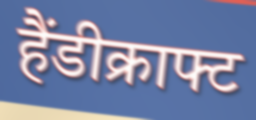
हैंडीक्राफ्ट